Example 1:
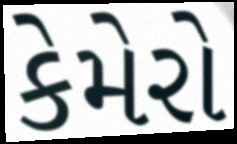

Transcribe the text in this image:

કેમેરો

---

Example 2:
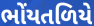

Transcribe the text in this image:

ભોંયતળિયે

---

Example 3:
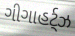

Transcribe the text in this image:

ગીગાહર્ટ્ઝ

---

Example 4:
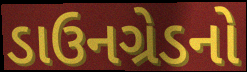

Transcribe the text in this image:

ડાઉનગ્રેડનો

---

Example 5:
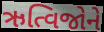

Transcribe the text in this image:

ઋત્વિજોને